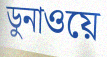
ডুনাওয়ে